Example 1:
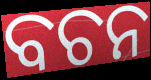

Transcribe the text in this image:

ବଚନ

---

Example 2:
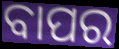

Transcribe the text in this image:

ବାପର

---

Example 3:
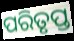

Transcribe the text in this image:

ପରିତୃପ୍ତ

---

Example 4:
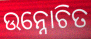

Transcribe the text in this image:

ଉନ୍ନୋଚିତ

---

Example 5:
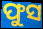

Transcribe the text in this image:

ଫୁସ